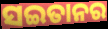
ସଇତାନର